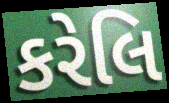
કરેલિ